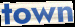
town